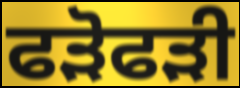
ਫੜੋਫੜੀ